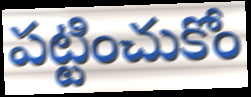
పట్టించుకోం